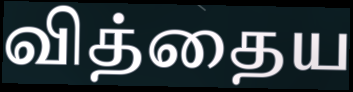
வித்தைய